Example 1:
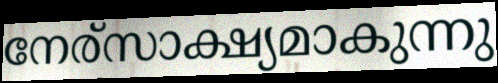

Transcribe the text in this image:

നേര്സാക്ഷ്യമാകുന്നു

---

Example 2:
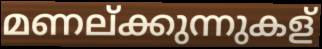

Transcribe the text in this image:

മണല്ക്കുന്നുകള്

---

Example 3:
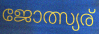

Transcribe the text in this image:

ജോത്സ്യര്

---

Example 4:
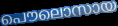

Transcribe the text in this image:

പൌലൊസായ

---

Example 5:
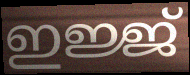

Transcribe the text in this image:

ഇജ്ജ്